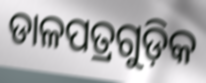
ଡାଳପତ୍ରଗୁଡ଼ିକ